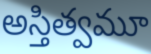
అస్తిత్వమూ